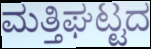
ಮತ್ತಿಘಟ್ಟದ